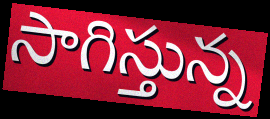
సాగిస్తున్న